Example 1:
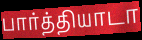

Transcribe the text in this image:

பார்த்தியாடா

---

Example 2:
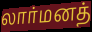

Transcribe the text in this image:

லார்மனத்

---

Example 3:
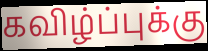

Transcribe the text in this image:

கவிழ்ப்புக்கு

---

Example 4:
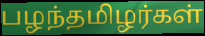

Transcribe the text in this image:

பழந்தமிழர்கள்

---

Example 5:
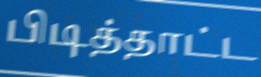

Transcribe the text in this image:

பிடித்தாட்ட